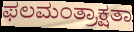
ಫಲಮಂತ್ರಾಕ್ಷತಾ